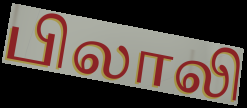
பிலாலி